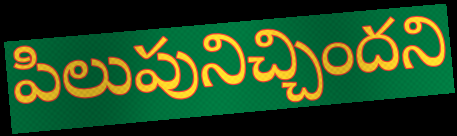
పిలుపునిచ్చిందని